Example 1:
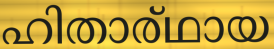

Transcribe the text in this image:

ഹിതാര്ഥായ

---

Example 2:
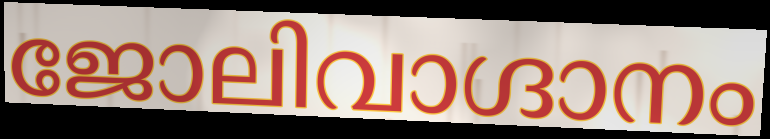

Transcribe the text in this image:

ജോലിവാഗ്ദാനം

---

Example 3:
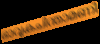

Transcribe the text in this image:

ഭാവുകചിന്താമണി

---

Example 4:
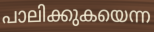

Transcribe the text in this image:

പാലിക്കുകയെന്ന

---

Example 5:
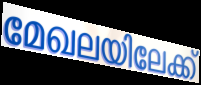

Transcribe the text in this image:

മേഖലയിലേക്ക്